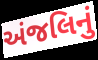
અંજલિનું